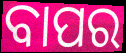
ବାପର